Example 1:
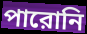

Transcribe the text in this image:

পারোনি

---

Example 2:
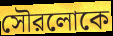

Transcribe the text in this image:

সৌরলোকে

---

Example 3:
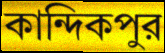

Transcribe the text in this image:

কান্দিকপুর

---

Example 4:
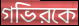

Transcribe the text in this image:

গভিরকে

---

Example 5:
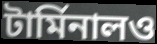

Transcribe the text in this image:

টার্মিনালও